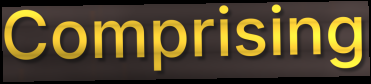
Comprising